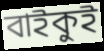
বাইকুই